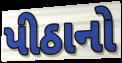
પીઠાનો